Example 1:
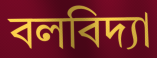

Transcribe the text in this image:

বলবিদ্যা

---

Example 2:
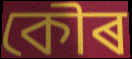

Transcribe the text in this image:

কৌৰ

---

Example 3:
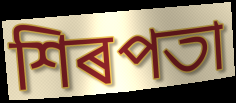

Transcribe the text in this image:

শিৰপতা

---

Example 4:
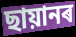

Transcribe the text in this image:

ছায়ানৰ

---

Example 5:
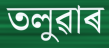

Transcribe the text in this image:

তলুৱাৰ